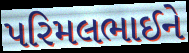
પરિમલભાઈને